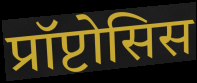
प्रॉप्टोसिस